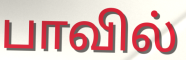
பாவில்